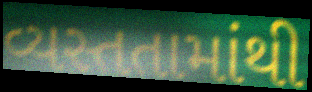
વ્યસ્તતામાંથી